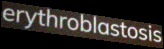
erythroblastosis